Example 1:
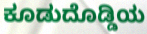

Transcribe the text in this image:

ಕೂಡುದೊಡ್ಡಿಯ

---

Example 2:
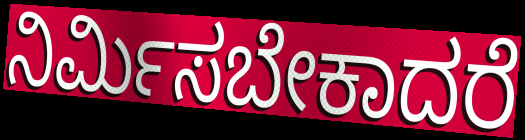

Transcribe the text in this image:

ನಿರ್ಮಿಸಬೇಕಾದರೆ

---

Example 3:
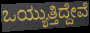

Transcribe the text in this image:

ಒಯ್ಯುತ್ತಿದ್ದೇವೆ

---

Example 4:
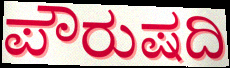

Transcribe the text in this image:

ಪೌರುಷದಿ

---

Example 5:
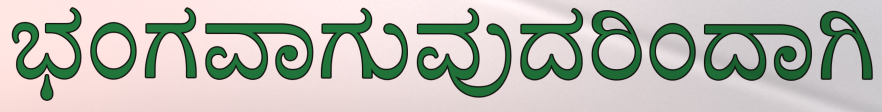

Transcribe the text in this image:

ಭಂಗವಾಗುವುದರಿಂದಾಗಿ